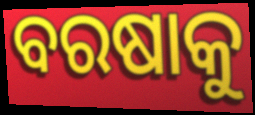
ବରଷାକୁ